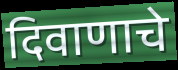
दिवाणाचे